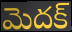
మెదక్